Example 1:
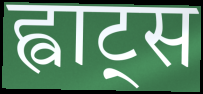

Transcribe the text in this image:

ह्वाट्स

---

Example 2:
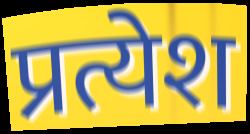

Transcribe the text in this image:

प्रत्येश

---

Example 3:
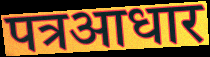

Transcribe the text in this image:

पत्रआधार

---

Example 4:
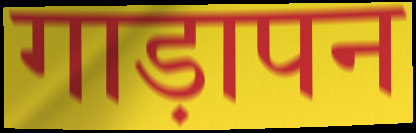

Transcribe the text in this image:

गाड़ापन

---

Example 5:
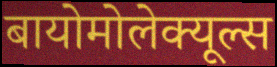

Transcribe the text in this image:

बायोमोलेक्यूल्स